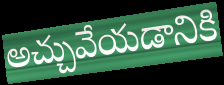
అచ్చువేయడానికి